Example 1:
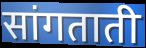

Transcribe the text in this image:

सांगताती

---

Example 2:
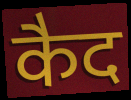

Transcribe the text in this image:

कैद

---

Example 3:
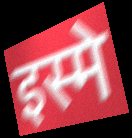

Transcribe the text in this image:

इस्मे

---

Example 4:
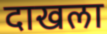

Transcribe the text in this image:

दाखला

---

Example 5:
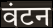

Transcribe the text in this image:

वंटन